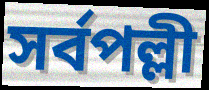
সৰ্বপল্লী